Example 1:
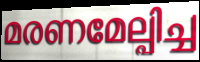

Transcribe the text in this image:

മരണമേല്പിച്ച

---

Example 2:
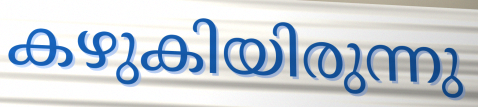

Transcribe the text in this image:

കഴുകിയിരുന്നു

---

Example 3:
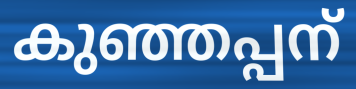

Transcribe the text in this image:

കുഞ്ഞപ്പന്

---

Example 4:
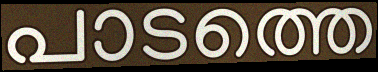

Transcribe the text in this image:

പാടത്തെ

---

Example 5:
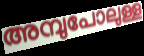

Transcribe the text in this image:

അമ്പുപോലുള്ള